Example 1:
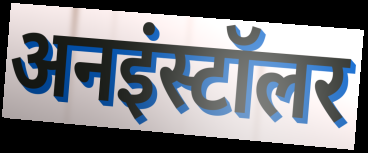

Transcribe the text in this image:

अनइंस्टॉलर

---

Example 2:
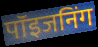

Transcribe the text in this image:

पॉइजनिंग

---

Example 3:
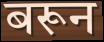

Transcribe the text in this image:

बरून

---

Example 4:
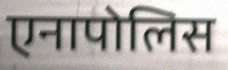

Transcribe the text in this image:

एनापोलिस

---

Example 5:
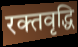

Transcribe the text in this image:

रक्तवृद्धि